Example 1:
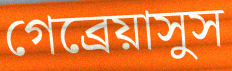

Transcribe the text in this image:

গেব্রেয়াসুস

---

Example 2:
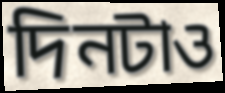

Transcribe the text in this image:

দিনটাও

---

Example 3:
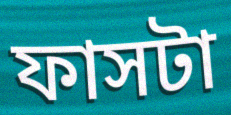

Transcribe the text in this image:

ফাসটা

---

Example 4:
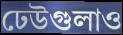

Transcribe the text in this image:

ঢেউগুলাও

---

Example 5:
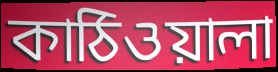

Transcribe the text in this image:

কাঠিওয়ালা